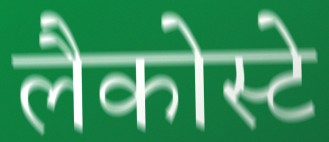
लैकोस्टे